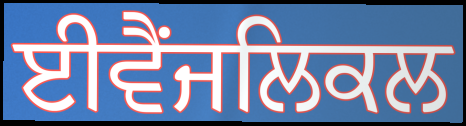
ਈਵੈਂਜਲਿਕਲ